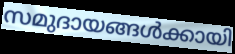
സമുദായങ്ങൾക്കായി